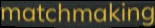
matchmaking